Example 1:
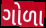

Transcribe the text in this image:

ગોળા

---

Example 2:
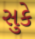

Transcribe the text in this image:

સુકે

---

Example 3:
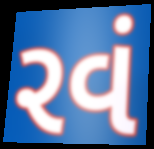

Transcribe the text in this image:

રવં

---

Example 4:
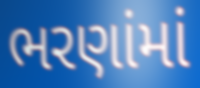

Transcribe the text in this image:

ભરણાંમાં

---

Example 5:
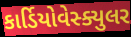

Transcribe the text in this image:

કાર્ડિયોવેસ્ક્યુલર